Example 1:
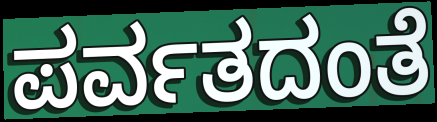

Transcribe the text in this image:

ಪರ್ವತದಂತೆ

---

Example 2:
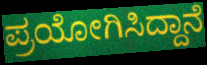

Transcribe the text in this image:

ಪ್ರಯೋಗಿಸಿದ್ದಾನೆ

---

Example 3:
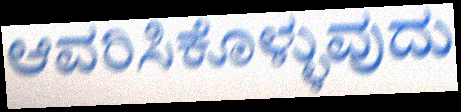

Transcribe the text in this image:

ಆವರಿಸಿಕೊಳ್ಳುವುದು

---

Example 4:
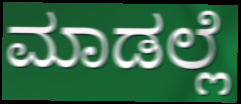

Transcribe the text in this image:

ಮಾಡಲ್ಲೆ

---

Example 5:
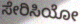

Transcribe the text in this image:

ಸೇರಿಸಿಯೋ